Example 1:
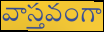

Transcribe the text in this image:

వాస్తవంగా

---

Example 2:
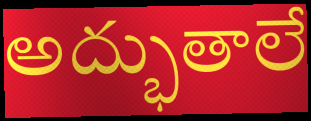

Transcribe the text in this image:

అద్భుతాలే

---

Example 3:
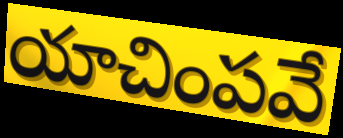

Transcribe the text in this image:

యాచింపవే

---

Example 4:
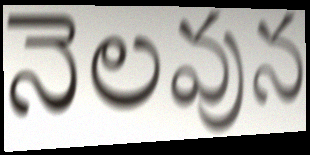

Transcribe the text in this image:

నెలవున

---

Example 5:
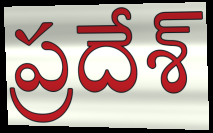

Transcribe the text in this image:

ప్రదేశ్